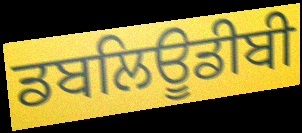
ਡਬਲਿਊਡੀਬੀ